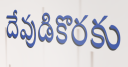
దేవుడికొరకు